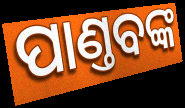
ପାଣ୍ତବଙ୍କ